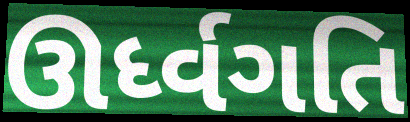
ઊર્ધ્વગતિ